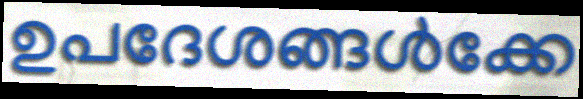
ഉപദേശങ്ങൾക്കേ